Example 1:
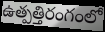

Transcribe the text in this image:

ఉత్పత్తిరంగంలో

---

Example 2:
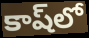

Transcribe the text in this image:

కాష్‌లో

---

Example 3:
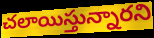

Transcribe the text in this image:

చలాయిస్తున్నారని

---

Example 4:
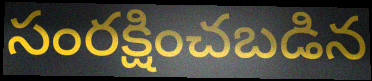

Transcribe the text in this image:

సంరక్షించబడిన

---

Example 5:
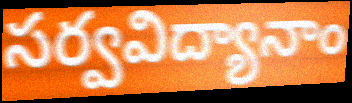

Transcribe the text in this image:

సర్వవిద్యానాం